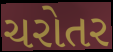
ચરોતર